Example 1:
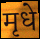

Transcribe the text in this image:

मृधे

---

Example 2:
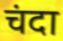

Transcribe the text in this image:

चंदा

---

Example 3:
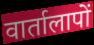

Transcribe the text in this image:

वार्तालापों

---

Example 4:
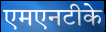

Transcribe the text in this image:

एमएनटीके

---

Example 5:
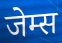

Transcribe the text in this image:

जेम्स